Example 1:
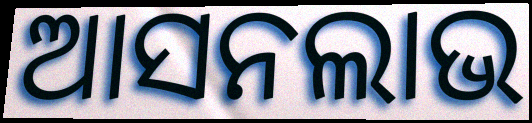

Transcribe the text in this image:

ଆସନଲାଭ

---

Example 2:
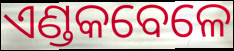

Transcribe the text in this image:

ଏଣ୍ଡକବେଳେ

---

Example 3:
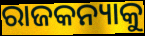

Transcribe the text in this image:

ରାଜକନ୍ୟାକୁ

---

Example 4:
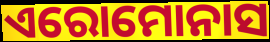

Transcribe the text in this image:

ଏରୋମୋନାସ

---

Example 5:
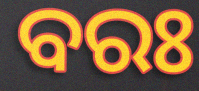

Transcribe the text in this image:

ବରଃ